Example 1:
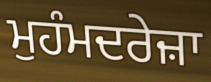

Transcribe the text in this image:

ਮੁਹੰਮਦਰੇਜ਼ਾ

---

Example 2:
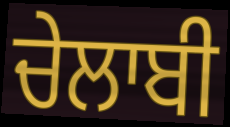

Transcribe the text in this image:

ਚੇਲਾਬੀ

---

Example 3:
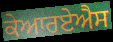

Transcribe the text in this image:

ਕੇਆਰਏਐਸ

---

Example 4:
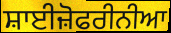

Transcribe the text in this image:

ਸ਼ਾਈਜ਼ੋਫਰੀਨੀਆ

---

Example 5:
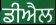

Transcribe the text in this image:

ਡੀਐਲ